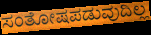
ಸಂತೋಷಪಡುವುದಿಲ್ಲ